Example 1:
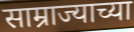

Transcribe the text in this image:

साम्राज्याच्या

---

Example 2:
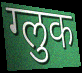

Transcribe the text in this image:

ग्लुक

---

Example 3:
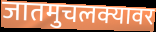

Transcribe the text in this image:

जातमुचलक्यावर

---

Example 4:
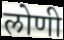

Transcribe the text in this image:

लोणी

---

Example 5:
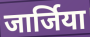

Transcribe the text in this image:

जार्जिया